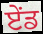
ਏੰਡ